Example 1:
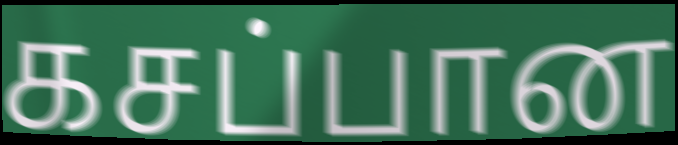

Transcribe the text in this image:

கசப்பான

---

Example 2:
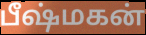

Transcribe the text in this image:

பீஷ்மகன்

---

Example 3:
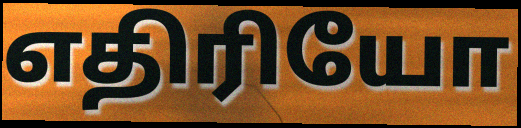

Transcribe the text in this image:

எதிரியோ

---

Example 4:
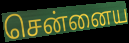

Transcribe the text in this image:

சென்னைய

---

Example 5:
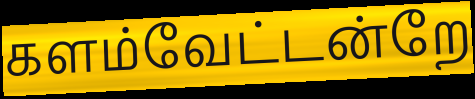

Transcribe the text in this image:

களம்வேட்டன்றே